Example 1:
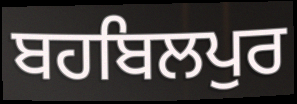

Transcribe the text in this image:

ਬਹਬਿਲਪੁਰ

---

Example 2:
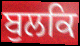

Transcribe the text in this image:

ਬੁਲਕਿ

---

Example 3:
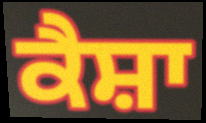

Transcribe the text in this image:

ਕੈਸ਼ਾ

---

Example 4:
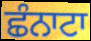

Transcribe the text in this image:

ਛੰਨਾਟਾ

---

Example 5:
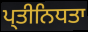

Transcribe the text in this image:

ਪ੍ਤੀਨਿਧਤਾ